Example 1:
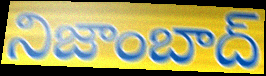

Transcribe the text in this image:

నిజాంబాద్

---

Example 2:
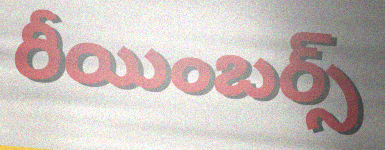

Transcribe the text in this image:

రీయింబర్స్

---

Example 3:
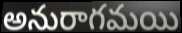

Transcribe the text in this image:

అనురాగమయి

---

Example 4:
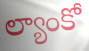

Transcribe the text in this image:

ల్యాంకో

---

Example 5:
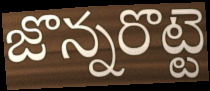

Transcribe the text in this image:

జొన్నరొట్టె